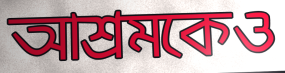
আশ্রমকেও